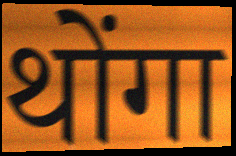
थोंगा